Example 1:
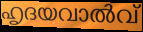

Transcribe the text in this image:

ഹൃദയവാൽവ്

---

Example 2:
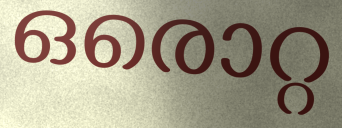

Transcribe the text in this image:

ഒരൊറ്റ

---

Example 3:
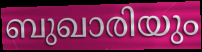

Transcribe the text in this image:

ബുഖാരിയും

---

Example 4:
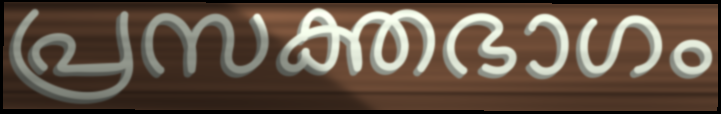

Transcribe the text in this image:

പ്രസക്തഭാഗം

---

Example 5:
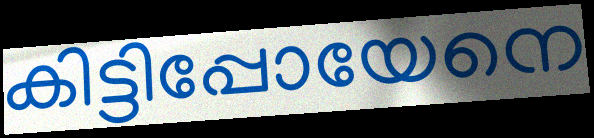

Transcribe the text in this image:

കിട്ടിപ്പോയേനെ